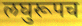
लघुरूपच